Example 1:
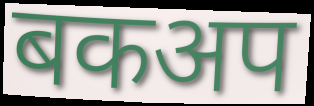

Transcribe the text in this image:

बकअप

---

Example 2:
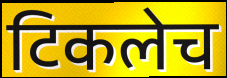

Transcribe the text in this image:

टिकलेच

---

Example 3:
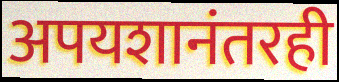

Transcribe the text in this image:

अपयशानंतरही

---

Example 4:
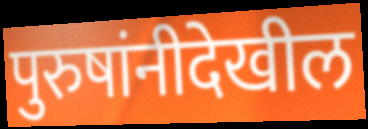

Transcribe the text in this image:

पुरुषांनीदेखील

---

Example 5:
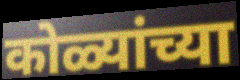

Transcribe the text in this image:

कोळ्यांच्या